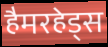
हैमरहेड्स